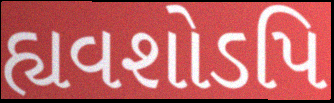
હ્યવશોઽપિ